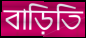
বাড়িতি